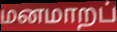
மனமாறப்